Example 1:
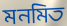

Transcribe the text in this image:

মনমিত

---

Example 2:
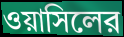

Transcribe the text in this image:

ওয়াসিলের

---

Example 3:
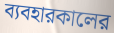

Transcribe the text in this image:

ব্যবহারকালের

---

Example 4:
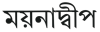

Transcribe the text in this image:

ময়নাদ্বীপ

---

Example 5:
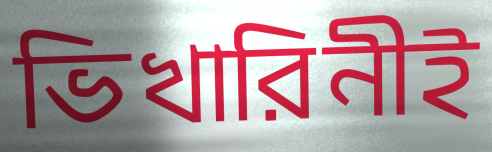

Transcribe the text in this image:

ভিখারিনীই